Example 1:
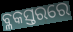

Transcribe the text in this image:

ବ୍ଳକସ୍ତରରେ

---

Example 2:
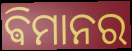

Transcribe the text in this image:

ଵିମାନର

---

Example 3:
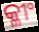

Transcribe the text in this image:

କ୍ଳୀଂ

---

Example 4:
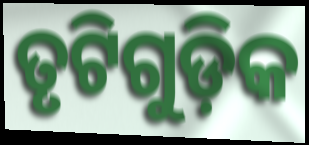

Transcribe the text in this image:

ତୃଟିଗୁଡ଼ିକ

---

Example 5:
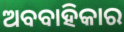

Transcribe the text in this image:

ଅବବାହିକାର